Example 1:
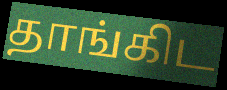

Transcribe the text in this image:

தாங்கிட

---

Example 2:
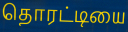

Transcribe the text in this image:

தொரட்டியை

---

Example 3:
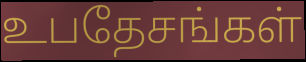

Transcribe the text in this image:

உபதேசங்கள்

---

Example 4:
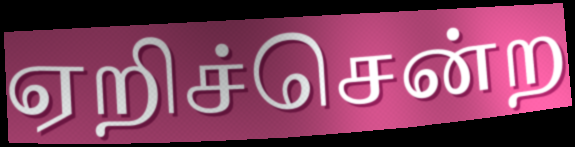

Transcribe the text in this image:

ஏறிச்சென்ற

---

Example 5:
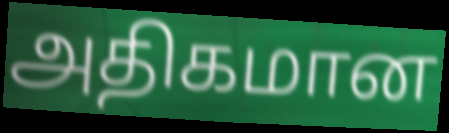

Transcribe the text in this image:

அதிகமான